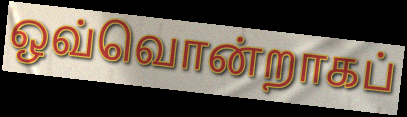
ஒவ்வொன்றாகப்